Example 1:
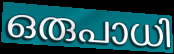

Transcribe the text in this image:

ഒരുപാധി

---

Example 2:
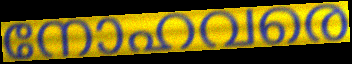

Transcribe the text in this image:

നോഹവരെ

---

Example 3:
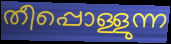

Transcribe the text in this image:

തീപ്പൊള്ളുന്ന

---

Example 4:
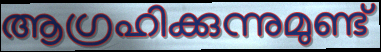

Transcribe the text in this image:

ആഗ്രഹിക്കുന്നുമുണ്ട്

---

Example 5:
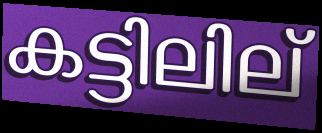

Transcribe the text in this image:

കട്ടിലില്